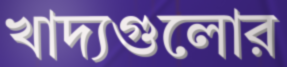
খাদ্যগুলোর